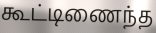
கூட்டிணைந்த